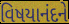
વિષયાનંદને